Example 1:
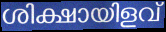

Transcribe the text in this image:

ശിക്ഷായിളവ്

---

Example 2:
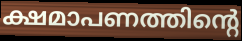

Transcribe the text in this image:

ക്ഷമാപണത്തിന്റെ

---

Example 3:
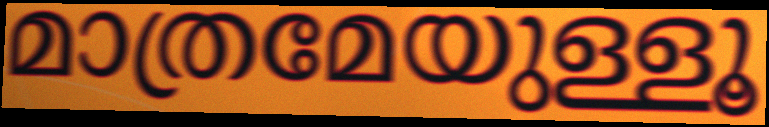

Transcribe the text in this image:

മാത്രമേയുള്ളൂ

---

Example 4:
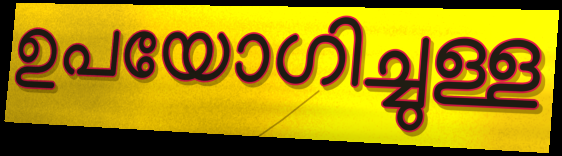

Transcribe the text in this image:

ഉപയോഗിച്ചുള്ള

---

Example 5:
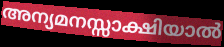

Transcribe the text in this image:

അന്യമനസ്സാക്ഷിയാൽ